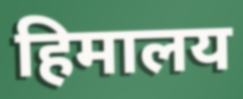
हिमालय